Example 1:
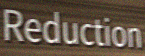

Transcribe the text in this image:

Reduction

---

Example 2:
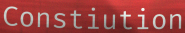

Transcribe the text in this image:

Constiution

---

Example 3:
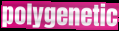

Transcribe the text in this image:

polygenetic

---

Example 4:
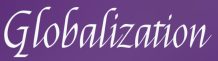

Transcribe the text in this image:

Globalization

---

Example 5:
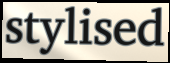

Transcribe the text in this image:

stylised